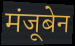
मंजूबेन